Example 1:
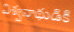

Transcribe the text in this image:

విశ్వనాథుడికి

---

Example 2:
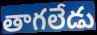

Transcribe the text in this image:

తాగలేడు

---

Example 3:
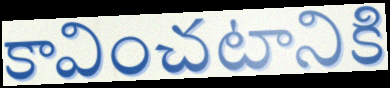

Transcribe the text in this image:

కావించటానికి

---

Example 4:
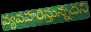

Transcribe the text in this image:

వ్యవహరిస్తున్నదని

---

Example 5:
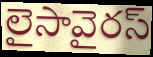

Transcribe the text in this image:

లైసావైరస్